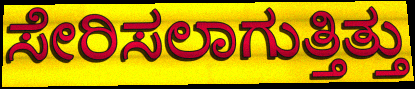
ಸೇರಿಸಲಾಗುತ್ತಿತ್ತು